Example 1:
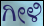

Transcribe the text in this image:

ಗೀಳಿ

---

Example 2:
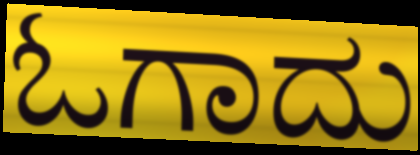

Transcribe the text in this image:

ಓಗಾದು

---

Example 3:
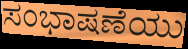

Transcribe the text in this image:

ಸಂಭಾಷಣೆಯು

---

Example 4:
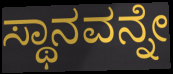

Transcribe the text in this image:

ಸ್ಥಾನವನ್ನೇ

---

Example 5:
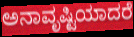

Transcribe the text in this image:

ಅನಾವೃಷ್ಟಿಯಾದರೆ